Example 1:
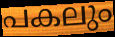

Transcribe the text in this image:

പകലും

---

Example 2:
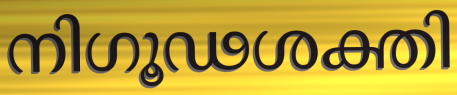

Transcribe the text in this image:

നിഗൂഢശക്തി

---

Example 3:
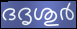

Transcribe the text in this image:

ദദൃശുർ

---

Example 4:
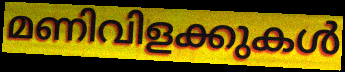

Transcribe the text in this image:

മണിവിളക്കുകൾ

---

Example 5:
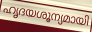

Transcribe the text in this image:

ഹൃദയശൂന്യമായി